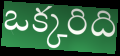
ఒక్కరిది